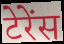
टेरेंस